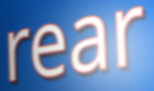
rear